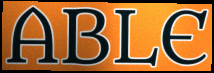
ABLE